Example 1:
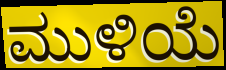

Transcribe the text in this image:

ಮುಳಿಯೆ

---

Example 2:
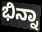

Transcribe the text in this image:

ಭಿನ್ನಾ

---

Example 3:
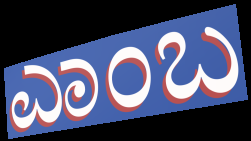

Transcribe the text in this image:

ಎಾಂಬ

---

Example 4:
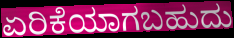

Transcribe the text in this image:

ಏರಿಕೆಯಾಗಬಹುದು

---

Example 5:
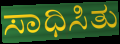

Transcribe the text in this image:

ಸಾಧಿಸಿತು